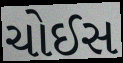
ચોઈસ